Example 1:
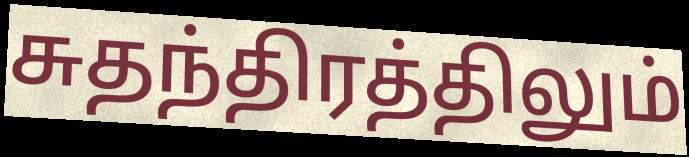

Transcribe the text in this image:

சுதந்திரத்திலும்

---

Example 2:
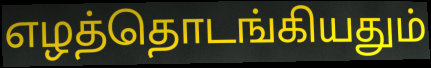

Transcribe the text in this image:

எழத்தொடங்கியதும்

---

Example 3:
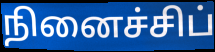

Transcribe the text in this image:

நினைச்சிப்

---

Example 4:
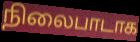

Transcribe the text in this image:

நிலைபாடாக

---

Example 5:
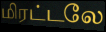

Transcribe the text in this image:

மிரட்டலே